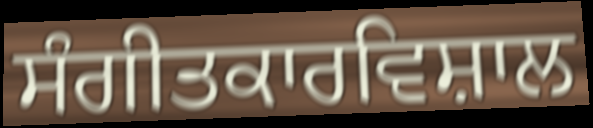
ਸੰਗੀਤਕਾਰਵਿਸ਼ਾਲ